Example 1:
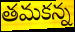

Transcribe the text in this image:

తమకన్న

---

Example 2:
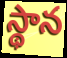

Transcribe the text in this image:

స్థాన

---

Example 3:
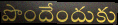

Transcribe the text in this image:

పొందేందుకు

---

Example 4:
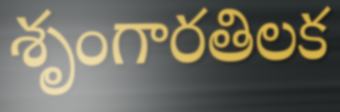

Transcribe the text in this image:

శృంగారతిలక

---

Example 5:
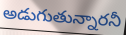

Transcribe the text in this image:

అడుగుతున్నారనీ